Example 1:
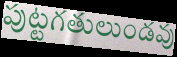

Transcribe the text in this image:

పుట్టగతులుండవు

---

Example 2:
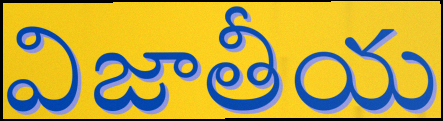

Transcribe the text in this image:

విజాతీయ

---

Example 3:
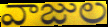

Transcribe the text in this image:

వాజుల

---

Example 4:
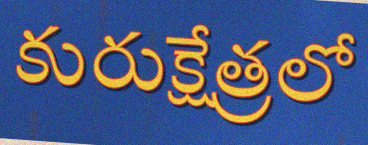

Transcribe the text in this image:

కురుక్షేత్రలో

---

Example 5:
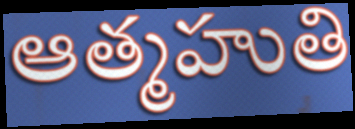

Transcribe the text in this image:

ఆత్మహుతి